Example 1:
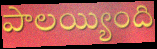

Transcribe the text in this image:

పాలయ్యింది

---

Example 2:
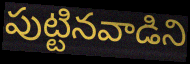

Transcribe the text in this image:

పుట్టినవాడిని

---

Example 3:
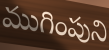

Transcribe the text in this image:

ముగింపుని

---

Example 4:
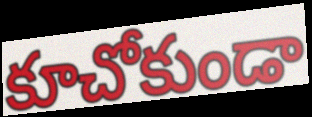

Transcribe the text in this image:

కూచోకుండా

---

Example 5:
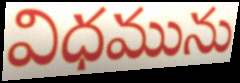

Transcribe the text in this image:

విధమును